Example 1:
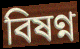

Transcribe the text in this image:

বিষণ্ন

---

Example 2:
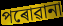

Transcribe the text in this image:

পৰোৱানা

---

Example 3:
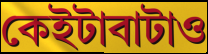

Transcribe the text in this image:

কেইটাবাটাও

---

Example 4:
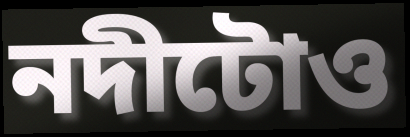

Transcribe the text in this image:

নদীটোও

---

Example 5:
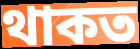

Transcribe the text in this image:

থাকত